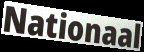
Nationaal